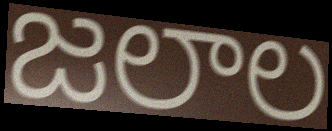
జలాల